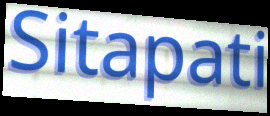
Sitapati